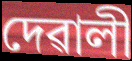
দেৱালী